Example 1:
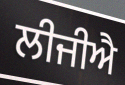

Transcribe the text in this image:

ਲੀਜੀਐ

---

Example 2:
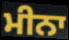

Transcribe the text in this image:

ਮੀਨਾ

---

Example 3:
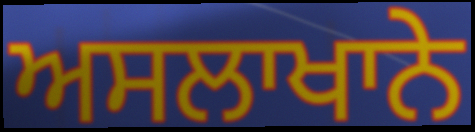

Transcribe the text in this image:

ਅਸਲਾਖਾਨੇ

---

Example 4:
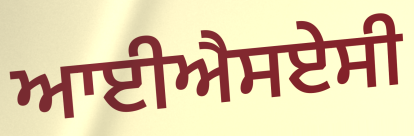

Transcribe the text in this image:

ਆਈਐਸਏਸੀ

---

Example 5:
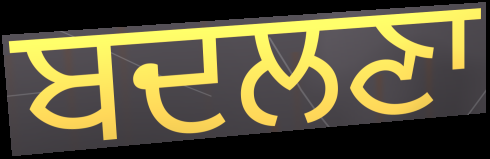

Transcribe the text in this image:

ਬਦਲਣਾ